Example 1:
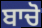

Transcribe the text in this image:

ਬਾਚੋ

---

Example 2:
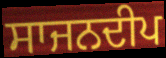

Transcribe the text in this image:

ਸਾਜਨਦੀਪ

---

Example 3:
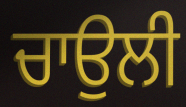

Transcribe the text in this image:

ਚਾਉਲੀ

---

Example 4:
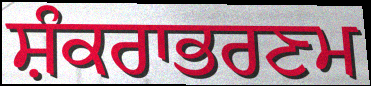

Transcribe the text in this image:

ਸ਼ੰਕਰਾਭਰਣਮ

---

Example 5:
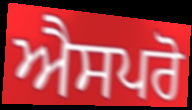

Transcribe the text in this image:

ਐਸਪਰੋ